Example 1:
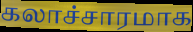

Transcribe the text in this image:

கலாச்சாரமாக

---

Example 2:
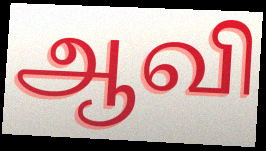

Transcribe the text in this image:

ஆவி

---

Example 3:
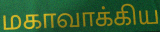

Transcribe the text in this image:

மகாவாக்கிய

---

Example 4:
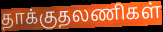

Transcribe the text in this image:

தாக்குதலணிகள்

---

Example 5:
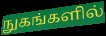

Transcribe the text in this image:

நுகங்களில்